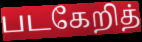
படகேறித்